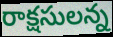
రాక్షసులన్న